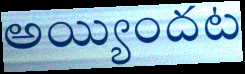
అయ్యిందట